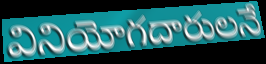
వినియోగదారులనే